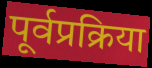
पूर्वप्रक्रिया